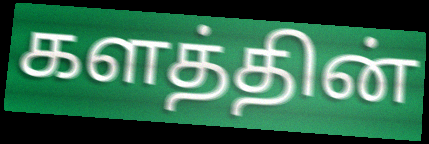
களத்தின்